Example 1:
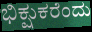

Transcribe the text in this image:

ಭಿಕ್ಷುಕರೆಂದು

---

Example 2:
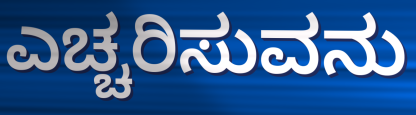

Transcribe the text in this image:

ಎಚ್ಚರಿಸುವನು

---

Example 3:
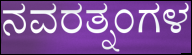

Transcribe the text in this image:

ನವರತ್ನಂಗಳ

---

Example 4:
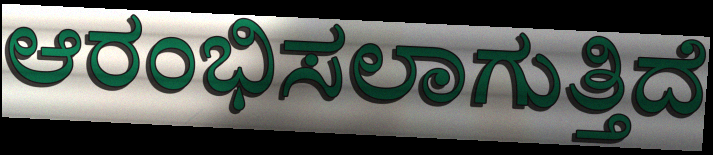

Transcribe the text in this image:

ಆರಂಭಿಸಲಾಗುತ್ತಿದೆ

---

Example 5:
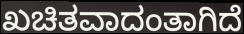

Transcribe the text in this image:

ಖಚಿತವಾದಂತಾಗಿದೆ